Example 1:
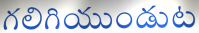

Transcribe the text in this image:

గలిగియుండుట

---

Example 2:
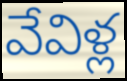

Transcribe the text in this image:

వేవిళ్ల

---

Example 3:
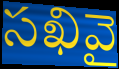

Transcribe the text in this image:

సఖివై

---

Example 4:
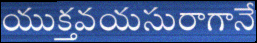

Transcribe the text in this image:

యుక్తవయసురాగానే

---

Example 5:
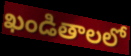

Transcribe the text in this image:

ఖండితాలలో